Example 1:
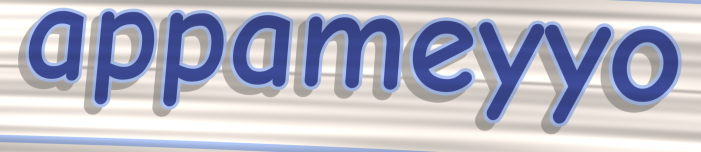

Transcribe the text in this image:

appameyyo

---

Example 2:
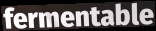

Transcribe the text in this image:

fermentable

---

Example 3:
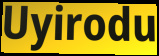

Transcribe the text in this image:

Uyirodu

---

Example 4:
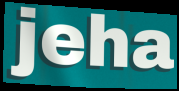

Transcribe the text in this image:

jeha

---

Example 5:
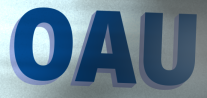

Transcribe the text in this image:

OAU